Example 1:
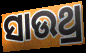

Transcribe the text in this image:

ସାଉଥ୍ର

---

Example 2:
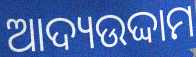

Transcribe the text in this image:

ଆଦ୍ୟଉଦ୍ଦାମ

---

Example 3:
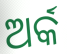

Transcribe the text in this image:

ଅର୍କ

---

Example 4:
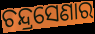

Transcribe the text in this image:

ଚନ୍ଦ୍ରସେଣାର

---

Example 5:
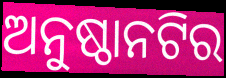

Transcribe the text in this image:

ଅନୁଷ୍ଠାନଟିର